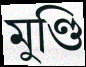
মুণ্ডি